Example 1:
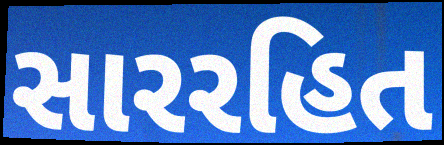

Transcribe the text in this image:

સારરહિત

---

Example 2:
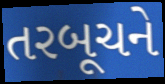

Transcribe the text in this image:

તરબૂચને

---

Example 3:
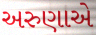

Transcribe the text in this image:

અરુણાએ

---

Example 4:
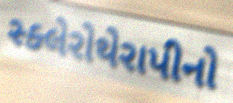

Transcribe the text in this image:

સ્ક્લેરોથેરાપીનો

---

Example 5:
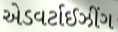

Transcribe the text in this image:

એડવર્ટાઈઝીંગ